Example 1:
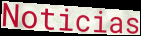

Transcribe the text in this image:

Noticias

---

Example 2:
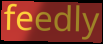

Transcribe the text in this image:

feedly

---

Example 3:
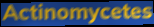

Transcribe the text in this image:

Actinomycetes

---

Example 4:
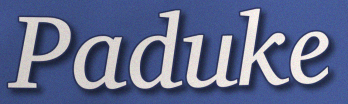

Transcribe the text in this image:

Paduke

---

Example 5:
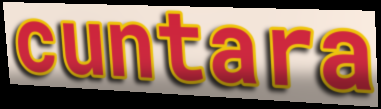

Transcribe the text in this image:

cuntara